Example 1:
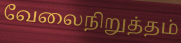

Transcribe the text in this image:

வேலைநிறுத்தம்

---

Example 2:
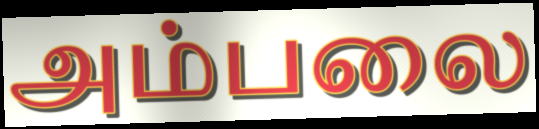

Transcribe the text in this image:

அம்பலை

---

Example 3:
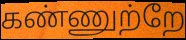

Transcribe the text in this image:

கண்ணுற்றே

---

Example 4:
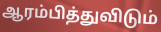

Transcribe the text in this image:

ஆரம்பித்துவிடும்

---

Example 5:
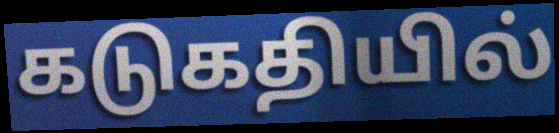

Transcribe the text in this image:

கடுகதியில்